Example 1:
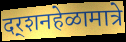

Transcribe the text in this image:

दर्शनहेळामात्रे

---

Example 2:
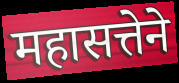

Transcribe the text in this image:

महासत्तेने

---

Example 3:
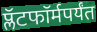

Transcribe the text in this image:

प्लॅटफॉर्मपर्यंत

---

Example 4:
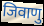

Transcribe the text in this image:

जिवाणु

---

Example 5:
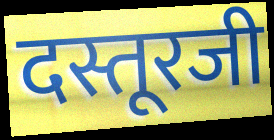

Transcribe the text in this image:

दस्तूरजी